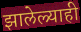
झालेल्याही